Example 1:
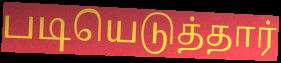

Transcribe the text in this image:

படியெடுத்தார்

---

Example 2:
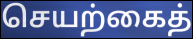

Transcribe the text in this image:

செயற்கைத்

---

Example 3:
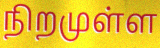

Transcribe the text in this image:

நிறமுள்ள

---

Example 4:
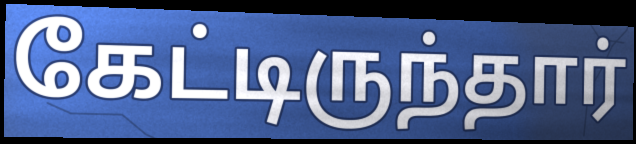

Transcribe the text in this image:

கேட்டிருந்தார்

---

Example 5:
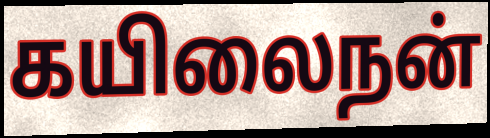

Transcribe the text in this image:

கயிலைநன்